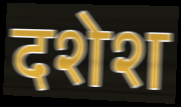
दशेश